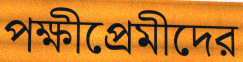
পক্ষীপ্রেমীদের